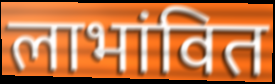
लाभांवित